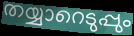
തയ്യാറെടുപ്പും